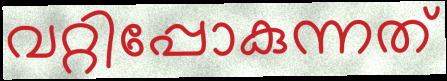
വറ്റിപ്പോകുന്നത്